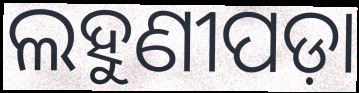
ଲହୁଣୀପଡ଼ା